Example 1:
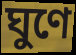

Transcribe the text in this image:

ঘুণে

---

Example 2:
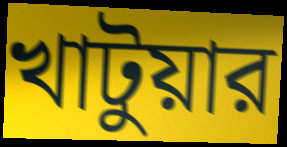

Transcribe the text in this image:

খাটুয়ার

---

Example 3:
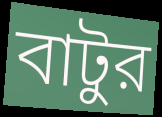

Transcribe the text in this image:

বাটুর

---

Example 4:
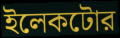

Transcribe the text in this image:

ইলেকটোর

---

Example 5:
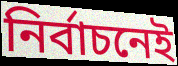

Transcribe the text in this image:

নির্বাচনেই